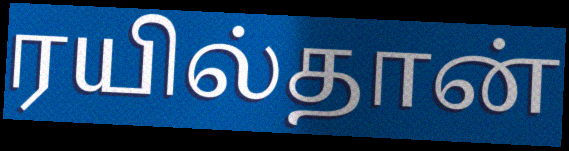
ரயில்தான்